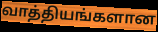
வாத்தியங்களான